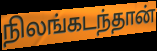
நிலங்கடந்தான்